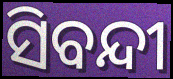
ସିବନ୍ଦୀ